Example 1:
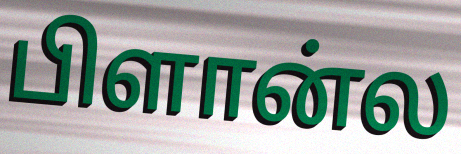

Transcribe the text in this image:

பிளான்ல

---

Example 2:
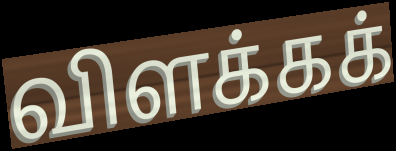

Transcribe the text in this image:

விளக்கக்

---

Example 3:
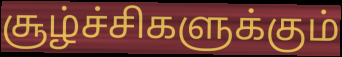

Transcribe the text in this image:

சூழ்ச்சிகளுக்கும்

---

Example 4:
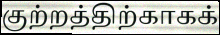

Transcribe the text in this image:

குற்றத்திற்காகக்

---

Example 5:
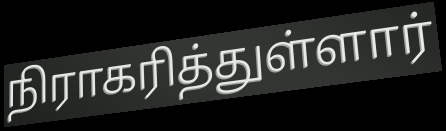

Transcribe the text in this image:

நிராகரித்துள்ளார்